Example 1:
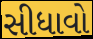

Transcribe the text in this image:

સીધાવો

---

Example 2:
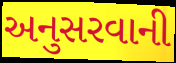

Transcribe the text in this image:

અનુસરવાની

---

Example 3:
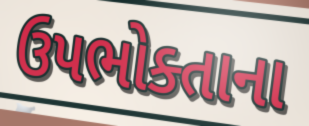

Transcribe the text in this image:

ઉપભોક્તાના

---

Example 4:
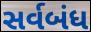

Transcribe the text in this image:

સર્વબંધ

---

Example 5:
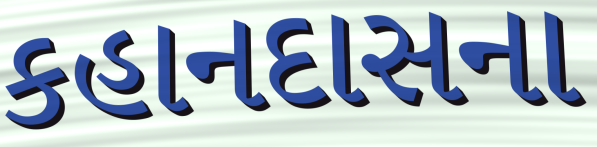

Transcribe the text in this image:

કહાનદાસના